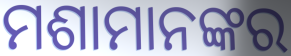
ମଶାମାନଙ୍କର